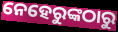
ନେହେରୁଙ୍କଠାରୁ